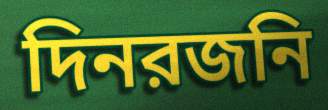
দিনরজনি